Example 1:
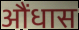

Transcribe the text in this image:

औंधास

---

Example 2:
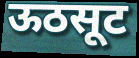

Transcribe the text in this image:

ऊठसूट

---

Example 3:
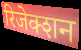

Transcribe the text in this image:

रिजेक्शन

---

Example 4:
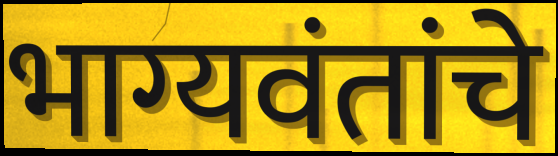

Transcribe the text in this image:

भाग्यवंतांचे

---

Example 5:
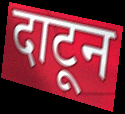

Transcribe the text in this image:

दाटून